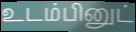
உடம்பினுட்